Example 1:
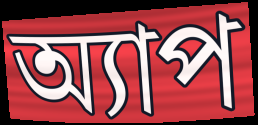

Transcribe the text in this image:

অ্যাপ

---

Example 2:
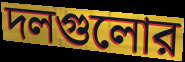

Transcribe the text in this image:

দলগুলোর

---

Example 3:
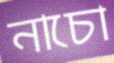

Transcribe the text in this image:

নাচো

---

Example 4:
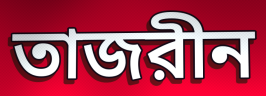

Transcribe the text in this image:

তাজরীন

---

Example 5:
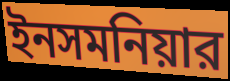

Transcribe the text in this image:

ইনসমনিয়ার